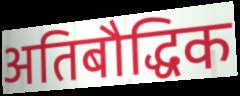
अतिबौद्धिक